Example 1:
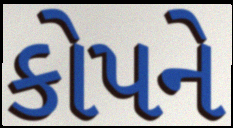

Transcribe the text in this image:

કોપને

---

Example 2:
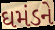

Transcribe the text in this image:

ઘમંડને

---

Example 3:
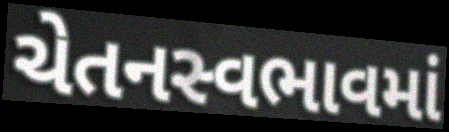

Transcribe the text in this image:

ચેતનસ્વભાવમાં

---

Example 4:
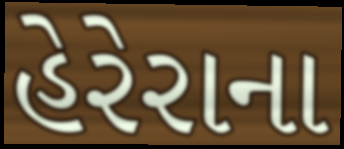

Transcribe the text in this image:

હેરેરાના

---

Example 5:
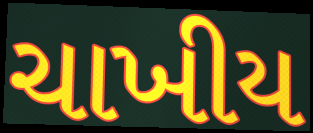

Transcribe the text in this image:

ચાખીય